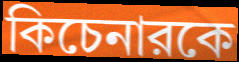
কিচেনারকে